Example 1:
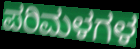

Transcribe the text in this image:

ಪರಿಮಳಗಳ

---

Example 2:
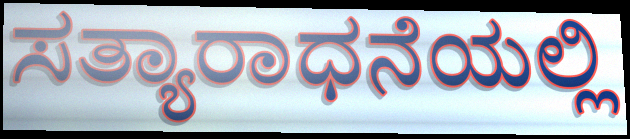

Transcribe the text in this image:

ಸತ್ಯಾರಾಧನೆಯಲ್ಲಿ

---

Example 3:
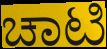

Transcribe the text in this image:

ಚಾಟಿ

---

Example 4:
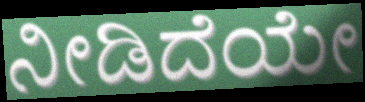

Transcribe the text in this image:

ನೀಡಿದೆಯೇ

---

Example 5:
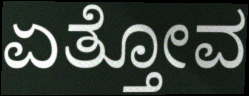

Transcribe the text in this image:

ಏತ್ತೋವ